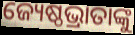
ଜ୍ୟେଷ୍ଠଭ୍ରାତାଙ୍କୁ